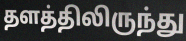
தளத்திலிருந்து